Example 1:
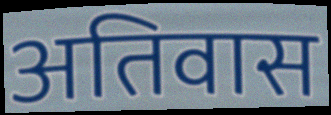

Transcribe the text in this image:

अतिवास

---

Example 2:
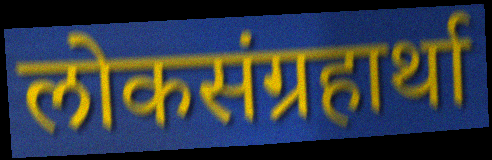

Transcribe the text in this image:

लोकसंग्रहार्था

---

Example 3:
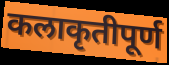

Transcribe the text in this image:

कलाकृतीपूर्ण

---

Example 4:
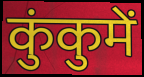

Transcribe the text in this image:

कुंकुमें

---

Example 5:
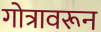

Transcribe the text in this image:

गोत्रावरून